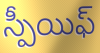
స్పీయిఫ్